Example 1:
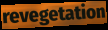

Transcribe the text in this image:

revegetation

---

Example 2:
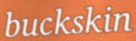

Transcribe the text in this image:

buckskin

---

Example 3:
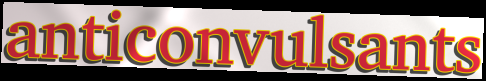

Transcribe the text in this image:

anticonvulsants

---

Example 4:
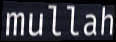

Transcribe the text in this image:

mullah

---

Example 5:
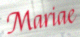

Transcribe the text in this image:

Mariae